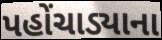
પહોંચાડ્યાના